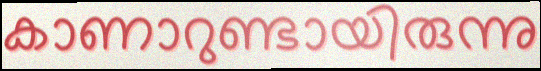
കാണാറുണ്ടായിരുന്നു